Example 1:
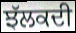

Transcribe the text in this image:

ਝੱਲਕਦੀ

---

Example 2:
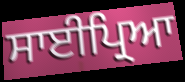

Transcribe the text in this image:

ਸਾਈਪ੍ਰਿਆ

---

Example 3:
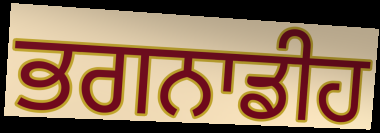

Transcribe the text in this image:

ਭਗਨਾਡੀਹ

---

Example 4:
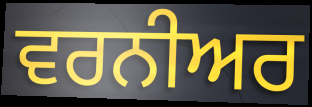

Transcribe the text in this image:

ਵਰਨੀਅਰ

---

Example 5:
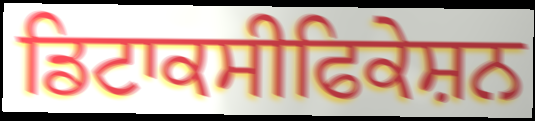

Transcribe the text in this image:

ਡਿਟਾਕਸੀਫਿਕੇਸ਼ਨ